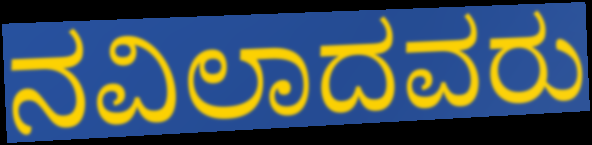
ನವಿಲಾದವರು